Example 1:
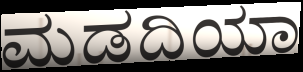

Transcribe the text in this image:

ಮಡದಿಯಾ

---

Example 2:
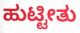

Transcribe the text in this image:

ಹುಟ್ಟೀತು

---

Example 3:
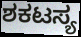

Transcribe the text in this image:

ಶಕಟಸ್ಯ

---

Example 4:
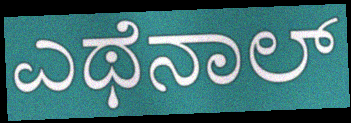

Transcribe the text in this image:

ಎಥೆನಾಲ್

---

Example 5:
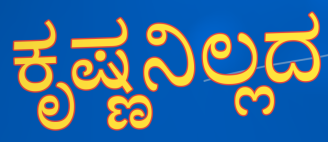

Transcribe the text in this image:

ಕೃಷ್ಣನಿಲ್ಲದ